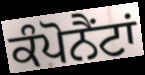
ਕੰਪੋਨੈਂਟਾਂ